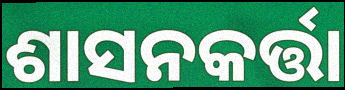
ଶାସନକର୍ତ୍ତା